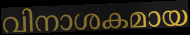
വിനാശകമായ